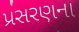
પ્રસરણના